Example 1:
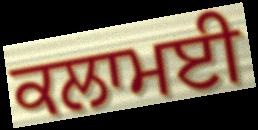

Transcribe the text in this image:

ਕਲਾਮਈ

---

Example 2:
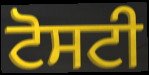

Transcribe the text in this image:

ਟੋਸਟੀ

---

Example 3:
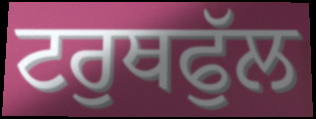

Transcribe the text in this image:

ਟਰੁਥਫੁੱਲ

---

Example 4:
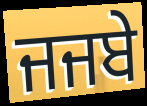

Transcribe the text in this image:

ਜਜਬੇ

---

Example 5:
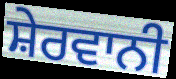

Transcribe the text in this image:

ਸ਼ੇਰਵਾਨੀ